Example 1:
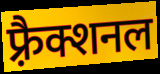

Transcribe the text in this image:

फ़्रैक्शनल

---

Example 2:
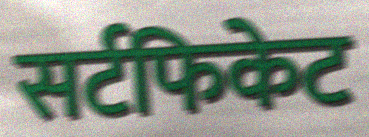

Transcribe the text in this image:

सर्टफिकेट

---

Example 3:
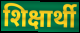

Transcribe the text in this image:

शिक्षार्थी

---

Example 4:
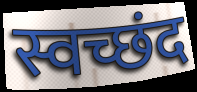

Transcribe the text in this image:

स्वच्छंद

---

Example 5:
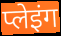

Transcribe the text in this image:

प्लेइंग